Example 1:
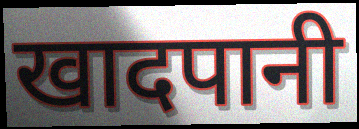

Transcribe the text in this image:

खादपानी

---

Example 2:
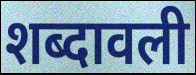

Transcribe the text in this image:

शब्दावली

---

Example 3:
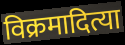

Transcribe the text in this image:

विक्रमादित्या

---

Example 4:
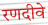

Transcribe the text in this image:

रणदीवे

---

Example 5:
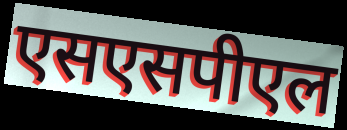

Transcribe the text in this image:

एसएसपीएल